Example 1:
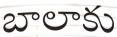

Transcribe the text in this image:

బాలాకు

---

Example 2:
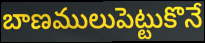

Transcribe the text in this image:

బాణములుపెట్టుకొనే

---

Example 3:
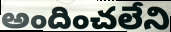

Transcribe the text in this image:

అందించలేని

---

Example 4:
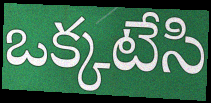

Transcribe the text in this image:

ఒక్కటేసి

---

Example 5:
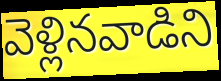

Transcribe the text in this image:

వెళ్లినవాడిని